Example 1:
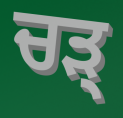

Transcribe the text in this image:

ਚੜ੍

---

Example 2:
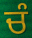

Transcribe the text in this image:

ਚੰ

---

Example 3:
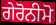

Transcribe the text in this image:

ਗੇਰੋਨੀਮੋ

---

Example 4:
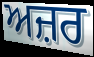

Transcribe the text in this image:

ਅਜ਼ਰ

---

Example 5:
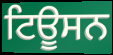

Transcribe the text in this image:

ਟਿਊਸਨ